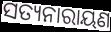
ସତ୍ୟନାରାୟଣ